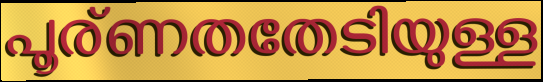
പൂര്ണതതേടിയുള്ള